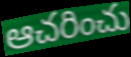
ఆచరించు